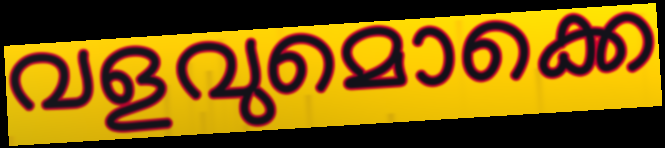
വളവുമൊക്കെ